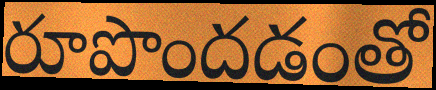
రూపొందడంతో